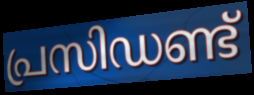
പ്രസിഡണ്ട്